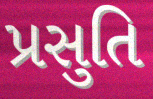
પ્રસુતિ